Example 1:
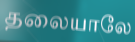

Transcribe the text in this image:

தலையாலே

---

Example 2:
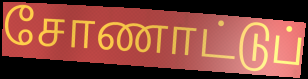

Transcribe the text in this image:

சோணாட்டுப்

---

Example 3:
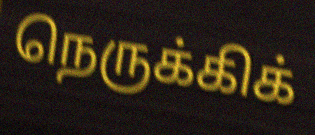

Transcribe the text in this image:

நெருக்கிக்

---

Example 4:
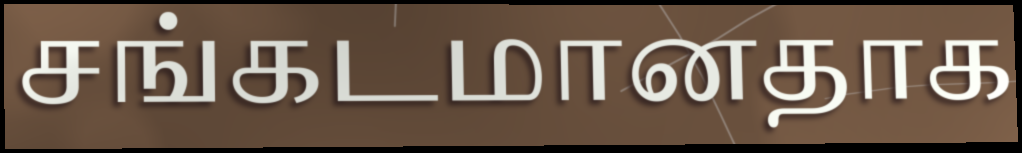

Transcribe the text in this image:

சங்கடமானதாக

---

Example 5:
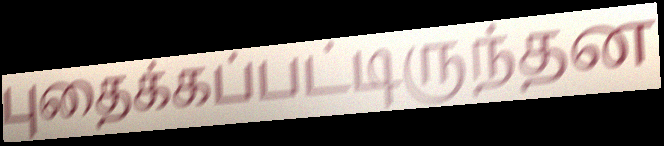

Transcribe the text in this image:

புதைக்கப்பட்டிருந்தன